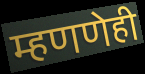
म्हणणेही